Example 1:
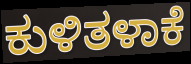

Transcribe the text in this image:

ಕುಳಿತಳಾಕೆ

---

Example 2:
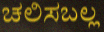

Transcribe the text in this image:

ಚಲಿಸಬಲ್ಲ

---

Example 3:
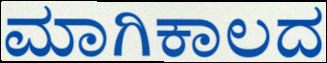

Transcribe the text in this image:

ಮಾಗಿಕಾಲದ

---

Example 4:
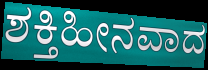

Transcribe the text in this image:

ಶಕ್ತಿಹೀನವಾದ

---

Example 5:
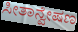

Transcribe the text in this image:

ಸೀತಾನ್ವೇಷಣ